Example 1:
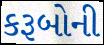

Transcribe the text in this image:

કરૂબોની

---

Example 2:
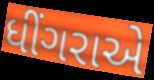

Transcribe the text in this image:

ધીંગરાએ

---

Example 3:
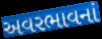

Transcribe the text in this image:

અવરભાવનાં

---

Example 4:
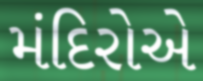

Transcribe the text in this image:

મંદિરોએ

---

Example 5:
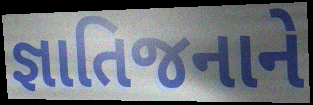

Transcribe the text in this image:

જ્ઞાતિજનાને